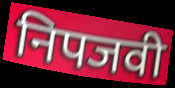
निपजवी